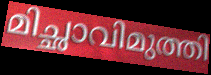
മിച്ഛാവിമുത്തി